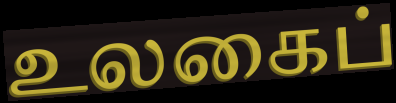
உலகைப்